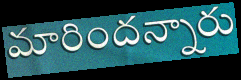
మారిందన్నారు